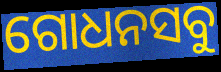
ଗୋଧନସବୁ